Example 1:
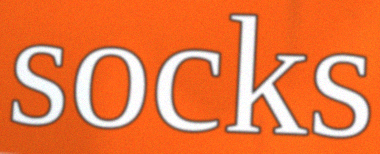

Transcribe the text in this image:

socks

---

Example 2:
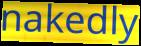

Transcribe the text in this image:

nakedly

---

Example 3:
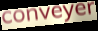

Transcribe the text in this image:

conveyer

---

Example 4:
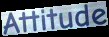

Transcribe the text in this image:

Attitude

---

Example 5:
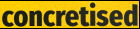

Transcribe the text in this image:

concretised